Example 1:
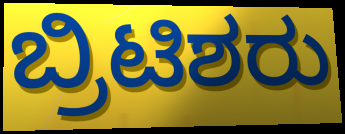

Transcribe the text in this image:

ಬ್ರಿಟಿಶರು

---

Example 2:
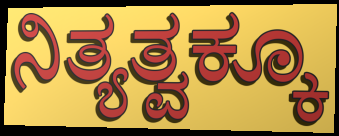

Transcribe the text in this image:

ನಿತ್ಯತ್ವಕ್ಕೂ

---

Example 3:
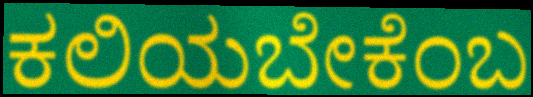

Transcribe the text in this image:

ಕಲಿಯಬೇಕೆಂಬ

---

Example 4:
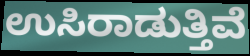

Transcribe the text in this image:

ಉಸಿರಾಡುತ್ತಿವೆ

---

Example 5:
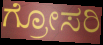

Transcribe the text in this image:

ಗ್ರೋಸರಿ